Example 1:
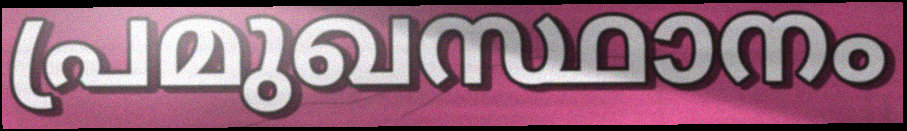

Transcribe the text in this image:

പ്രമുഖസ്ഥാനം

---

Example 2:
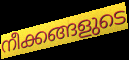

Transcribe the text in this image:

നീക്കങ്ങളുടെ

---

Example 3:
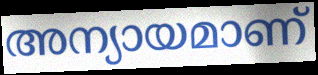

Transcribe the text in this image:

അന്യായമാണ്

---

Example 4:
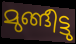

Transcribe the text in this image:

മുങ്ങീട്ടു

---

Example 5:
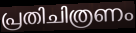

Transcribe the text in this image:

പ്രതിചിത്രണം